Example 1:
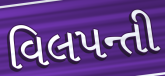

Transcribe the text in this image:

વિલપન્તી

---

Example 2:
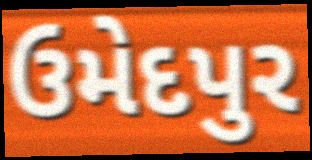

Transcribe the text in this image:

ઉમેદપુર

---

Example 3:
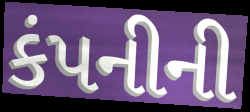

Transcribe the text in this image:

કંપનીની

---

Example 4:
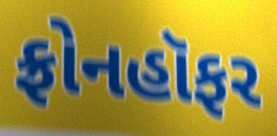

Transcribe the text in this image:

ફ્રોનહૉફર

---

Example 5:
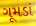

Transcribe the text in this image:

ગૂમડાં